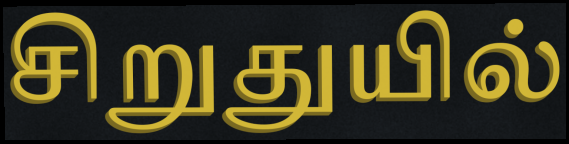
சிறுதுயில்